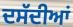
ਦਸੱਦੀਆਂ